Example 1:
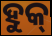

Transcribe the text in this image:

ହୁକ୍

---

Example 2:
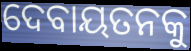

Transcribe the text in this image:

ଦେବାୟତନକୁ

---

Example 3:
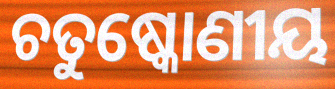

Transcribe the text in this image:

ଚତୁଷ୍କୋଣୀୟ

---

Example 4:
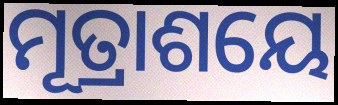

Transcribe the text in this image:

ମୂତ୍ରାଶୟେ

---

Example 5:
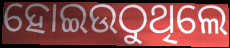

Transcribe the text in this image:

ହୋଇଉଠୁଥିଲେ